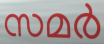
സമർ